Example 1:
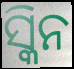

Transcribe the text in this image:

ସ୍କିନ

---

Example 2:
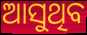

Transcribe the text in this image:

ଆସୁଥିବ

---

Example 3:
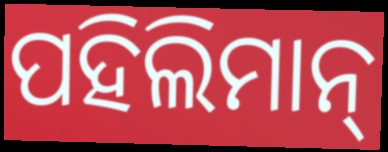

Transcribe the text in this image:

ପହିଲିମାନ୍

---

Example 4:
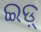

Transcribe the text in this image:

ଇଡ଼୍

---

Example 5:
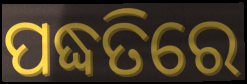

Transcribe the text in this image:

ପଦ୍ଧତିରେ